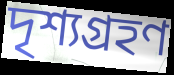
দৃশ্যগ্ৰহণ